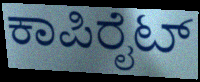
ಕಾಪಿರೈಟ್